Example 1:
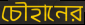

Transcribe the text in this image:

চৌহানের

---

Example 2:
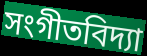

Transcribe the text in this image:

সংগীতবিদ্যা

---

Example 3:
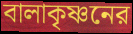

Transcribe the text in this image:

বালাকৃষ্ণনের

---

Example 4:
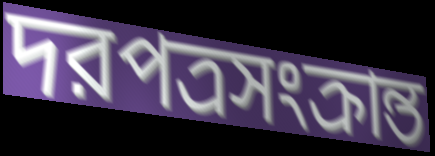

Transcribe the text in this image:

দরপত্রসংক্রান্ত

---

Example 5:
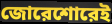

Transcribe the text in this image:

জোরেশোরেই